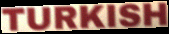
TURKISH